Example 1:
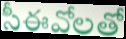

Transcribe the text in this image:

సీఈవోలతో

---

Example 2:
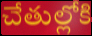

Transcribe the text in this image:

చేతుల్లోకి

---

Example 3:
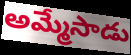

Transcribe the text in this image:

అమ్మేసాడు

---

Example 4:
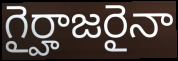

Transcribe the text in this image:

గైర్హాజరైనా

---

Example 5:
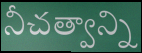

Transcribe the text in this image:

నీచత్వాన్ని